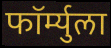
फॉर्म्युला